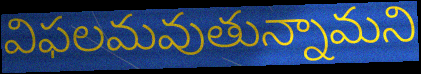
విఫలమవుతున్నామని